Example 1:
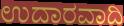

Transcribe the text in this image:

ಉದಾರವಾದಿ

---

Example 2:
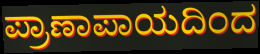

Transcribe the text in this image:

ಪ್ರಾಣಾಪಾಯದಿಂದ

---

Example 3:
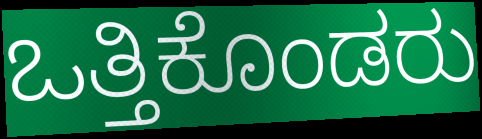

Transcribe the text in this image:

ಒತ್ತಿಕೊಂಡರು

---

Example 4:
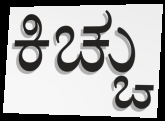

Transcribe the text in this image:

ಕಿಚ್ಚು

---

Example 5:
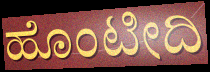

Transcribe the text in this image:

ಹೊಂಟೀದಿ